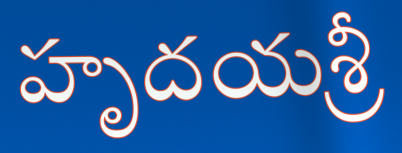
హృదయశ్రీ